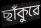
ছাঁকুৱে